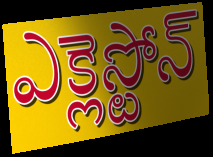
ఎక్లెస్టోన్